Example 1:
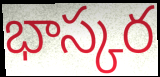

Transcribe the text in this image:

భాస్కర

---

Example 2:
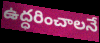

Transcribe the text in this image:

ఉద్ధరించాలనే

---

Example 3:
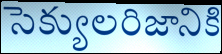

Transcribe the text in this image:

సెక్యులరిజానికి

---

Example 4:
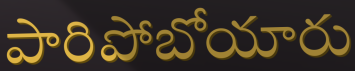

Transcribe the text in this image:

పారిపోబోయారు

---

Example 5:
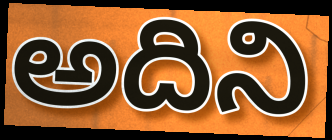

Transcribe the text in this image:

అదిని